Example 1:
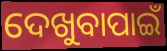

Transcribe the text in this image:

ଦେଖୁବାପାଇଁ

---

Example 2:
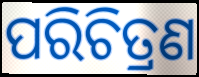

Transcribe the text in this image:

ପରିଚିତ୍ରଣ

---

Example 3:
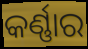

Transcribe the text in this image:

କର୍ଣ୍ଣାର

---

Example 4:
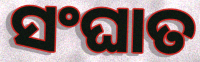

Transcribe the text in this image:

ସଂଘାତ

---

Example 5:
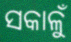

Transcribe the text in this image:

ସକାଳୁଁ